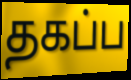
தகப்ப